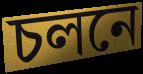
চলনে